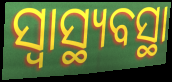
ସ୍ଵାସ୍ଥ୍ୟବସ୍ଥା